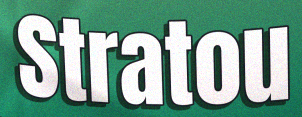
Stratou